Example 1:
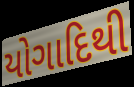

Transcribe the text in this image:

યોગાદિથી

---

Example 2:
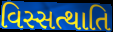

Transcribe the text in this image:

વિસ્સત્થાતિ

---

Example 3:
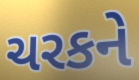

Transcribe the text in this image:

ચરકને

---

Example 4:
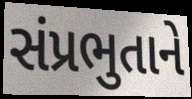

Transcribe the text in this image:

સંપ્રભુતાને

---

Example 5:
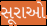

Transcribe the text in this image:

સૂરાઓ